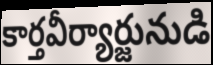
కార్తవీర్యార్జునుడి